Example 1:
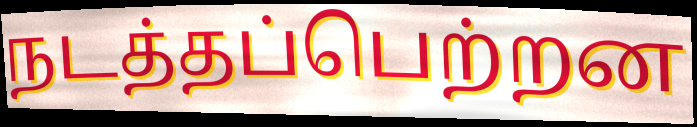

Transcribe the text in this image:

நடத்தப்பெற்றன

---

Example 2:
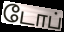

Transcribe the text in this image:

டோப்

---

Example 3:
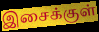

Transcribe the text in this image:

இசைக்குள்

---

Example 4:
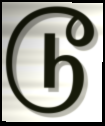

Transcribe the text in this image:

டூ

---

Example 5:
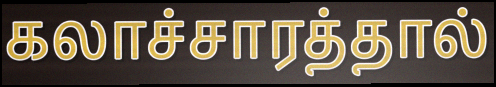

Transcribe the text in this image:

கலாச்சாரத்தால்